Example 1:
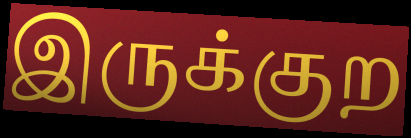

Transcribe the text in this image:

இருக்குற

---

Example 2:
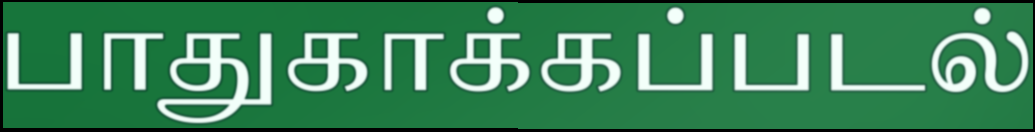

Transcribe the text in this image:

பாதுகாக்கப்படல்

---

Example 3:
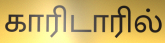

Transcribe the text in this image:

காரிடாரில்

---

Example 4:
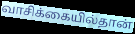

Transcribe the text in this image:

வாசிக்கையில்தான்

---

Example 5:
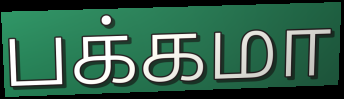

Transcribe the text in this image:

பக்கமா